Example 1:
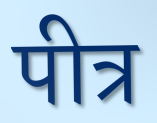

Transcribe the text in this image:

पीत्र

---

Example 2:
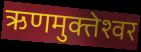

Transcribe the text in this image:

ऋणमुक्तेश्वर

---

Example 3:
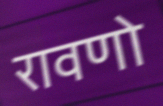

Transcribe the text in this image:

रावणो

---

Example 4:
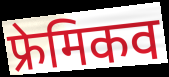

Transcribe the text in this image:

फ्रेमिकव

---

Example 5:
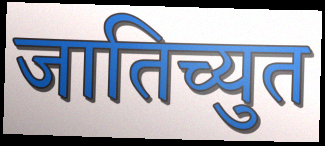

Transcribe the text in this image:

जातिच्युत